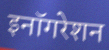
इनॉगरेशन